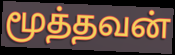
மூத்தவன்